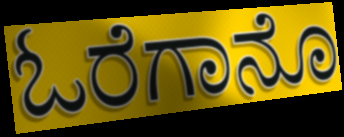
ಓರೆಗಾನೊ